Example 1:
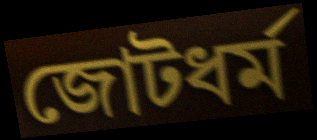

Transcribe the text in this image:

জোটধর্ম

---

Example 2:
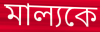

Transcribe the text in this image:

মাল্যকে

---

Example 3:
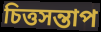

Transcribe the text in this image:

চিত্তসন্তাপ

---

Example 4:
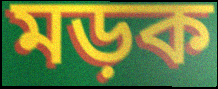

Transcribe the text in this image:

মড়ক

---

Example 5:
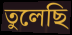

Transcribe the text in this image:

তুলেছি